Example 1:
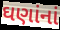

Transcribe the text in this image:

ઘણાંનાં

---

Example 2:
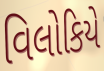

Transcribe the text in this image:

વિલોકિયે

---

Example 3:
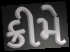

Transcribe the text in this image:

ક્રીમે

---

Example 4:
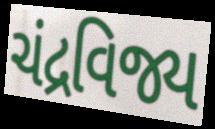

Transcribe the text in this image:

ચંદ્રવિજ્ય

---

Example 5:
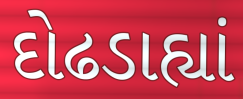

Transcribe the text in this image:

દોઢડાહ્યાં